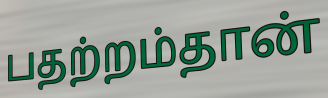
பதற்றம்தான்